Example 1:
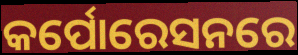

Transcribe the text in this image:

କର୍ପୋରେସନରେ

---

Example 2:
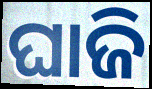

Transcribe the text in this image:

ଘାଜି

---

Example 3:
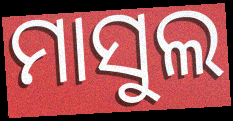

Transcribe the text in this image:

ମାସୁଲ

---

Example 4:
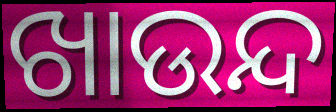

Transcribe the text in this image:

ଖାଉନ୍ଦ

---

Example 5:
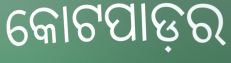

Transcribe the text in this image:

କୋଟପାଡ଼ର